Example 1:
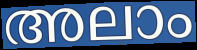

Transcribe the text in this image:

അലാം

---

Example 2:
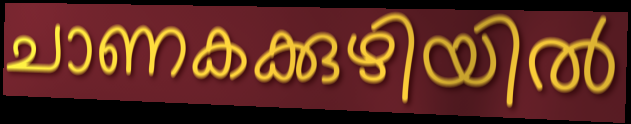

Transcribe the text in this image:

ചാണകക്കുഴിയിൽ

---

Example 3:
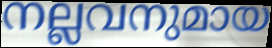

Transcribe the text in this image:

നല്ലവനുമായ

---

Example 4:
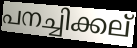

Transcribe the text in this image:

പനച്ചിക്കല്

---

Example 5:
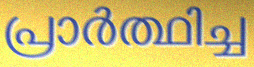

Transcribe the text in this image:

പ്രാർത്ഥിച്ച